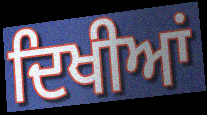
ਦਿਖੀਆਂ